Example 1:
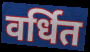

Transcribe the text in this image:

वर्धित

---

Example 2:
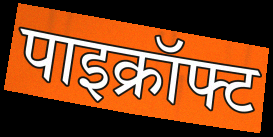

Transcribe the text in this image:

पाइक्रॉफ्ट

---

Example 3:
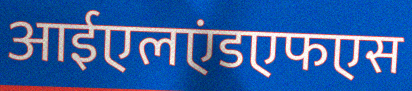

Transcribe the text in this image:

आईएलएंडएफएस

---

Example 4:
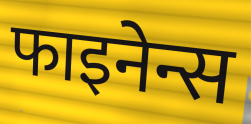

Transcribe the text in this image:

फाइनेन्स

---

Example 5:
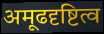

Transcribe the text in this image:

अमूढदृष्टित्व